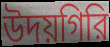
উদয়গিরি